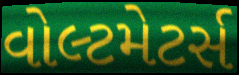
વોલ્ટમેટર્સ